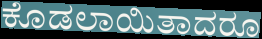
ಕೊಡಲಾಯಿತಾದರೂ